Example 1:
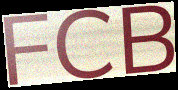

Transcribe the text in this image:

FCB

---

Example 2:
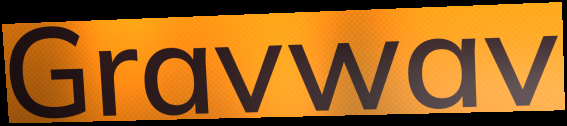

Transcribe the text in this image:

Gravwav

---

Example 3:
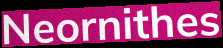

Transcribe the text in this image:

Neornithes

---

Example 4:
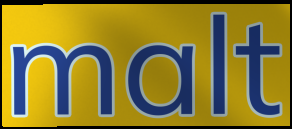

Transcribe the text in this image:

malt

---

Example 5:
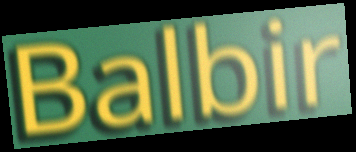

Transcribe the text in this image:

Balbir